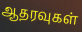
ஆதரவுகள்